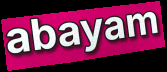
abayam